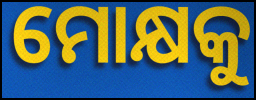
ମୋକ୍ଷକୁ